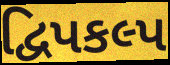
દ્વિપકલ્પ